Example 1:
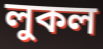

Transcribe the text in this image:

লুকল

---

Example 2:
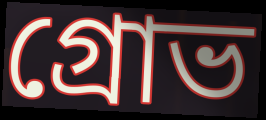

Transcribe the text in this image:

গ্রোভ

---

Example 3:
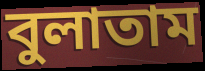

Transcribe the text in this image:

বুলাতাম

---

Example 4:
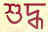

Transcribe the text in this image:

শুদ্ধ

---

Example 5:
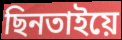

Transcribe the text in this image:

ছিনতাইয়ে